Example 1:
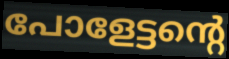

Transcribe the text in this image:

പോളേട്ടന്റെ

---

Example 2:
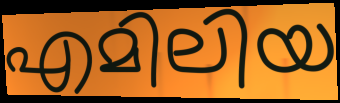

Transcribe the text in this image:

എമിലിയ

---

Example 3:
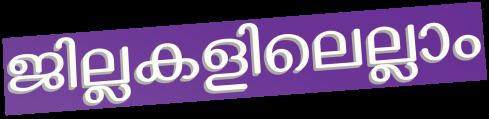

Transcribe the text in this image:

ജില്ലകളിലെല്ലാം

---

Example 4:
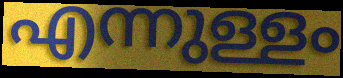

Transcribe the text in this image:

എന്നുള്ളം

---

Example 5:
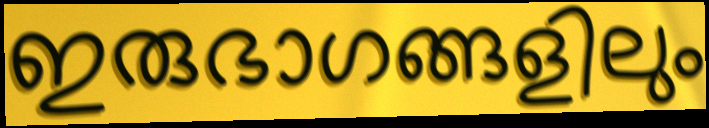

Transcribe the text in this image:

ഇരുഭാഗങ്ങളിലും